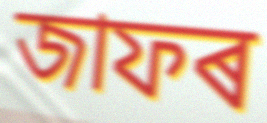
জাফৰ